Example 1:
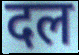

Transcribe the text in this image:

दल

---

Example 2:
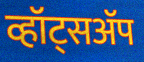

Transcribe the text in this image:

व्हॉट्सॲप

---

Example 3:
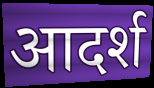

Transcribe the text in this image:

आदर्श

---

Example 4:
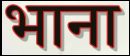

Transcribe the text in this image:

भाना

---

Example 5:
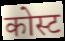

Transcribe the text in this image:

कोस्ट